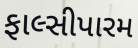
ફાલ્સીપારમ